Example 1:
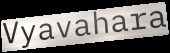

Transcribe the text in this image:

Vyavahara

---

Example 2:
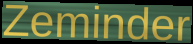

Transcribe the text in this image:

Zeminder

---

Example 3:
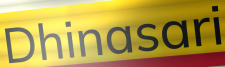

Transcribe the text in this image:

Dhinasari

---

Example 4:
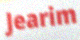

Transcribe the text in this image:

Jearim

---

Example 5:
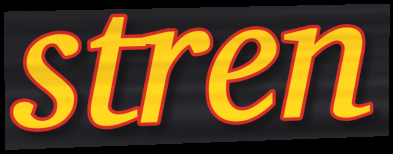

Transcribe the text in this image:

stren